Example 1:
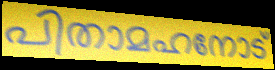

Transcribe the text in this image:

പിതാമഹനോട്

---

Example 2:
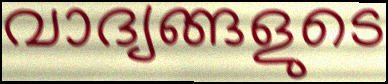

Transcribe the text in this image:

വാദ്യങ്ങളുടെ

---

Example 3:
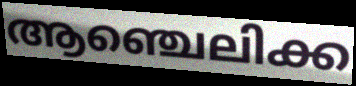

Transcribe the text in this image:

ആഞ്ചെലിക്ക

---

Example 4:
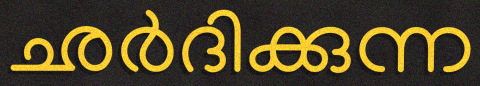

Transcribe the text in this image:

ഛർദിക്കുന്ന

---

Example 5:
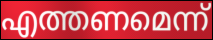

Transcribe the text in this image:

എത്തണമെന്ന്